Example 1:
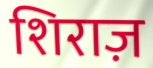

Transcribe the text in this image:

शिराज़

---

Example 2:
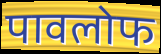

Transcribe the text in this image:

पावलोफ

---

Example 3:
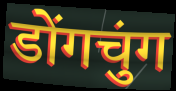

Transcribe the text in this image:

डोंगचुंग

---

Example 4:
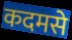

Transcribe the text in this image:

कदमसे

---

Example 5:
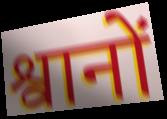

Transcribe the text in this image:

श्वानों